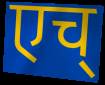
एच्